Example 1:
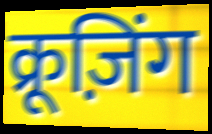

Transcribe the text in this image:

क्रूज़िंग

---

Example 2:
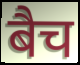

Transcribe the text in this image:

बैच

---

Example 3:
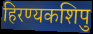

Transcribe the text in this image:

हिरण्यकशिपु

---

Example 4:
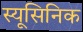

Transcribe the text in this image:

स्यूसिनिक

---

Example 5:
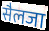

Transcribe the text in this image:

सैलजा